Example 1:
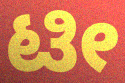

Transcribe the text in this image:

ಟೀ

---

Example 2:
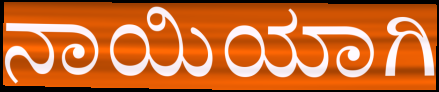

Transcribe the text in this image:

ನಾಯಿಯಾಗಿ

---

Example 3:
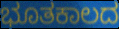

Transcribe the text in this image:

ಭೂತಕಾಲದ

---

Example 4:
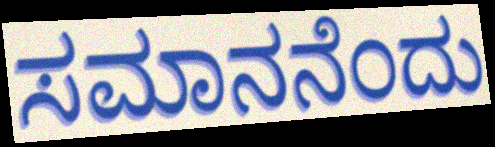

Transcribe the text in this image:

ಸಮಾನನೆಂದು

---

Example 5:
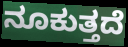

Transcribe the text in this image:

ನೂಕುತ್ತದೆ